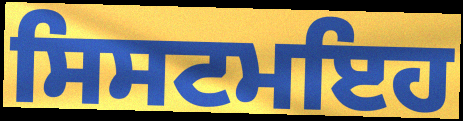
ਸਿਸਟਮਇਹ